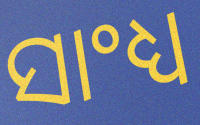
ସାଂଧ୍ୟ